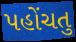
પહોંચતુ